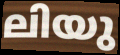
ലിയു